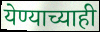
येण्याच्याही